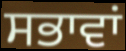
ਸਭਾਵਾਂ